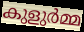
കുളുർമ്മ